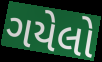
ગયેલો